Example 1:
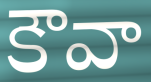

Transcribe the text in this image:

కౌవా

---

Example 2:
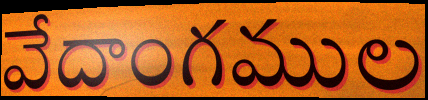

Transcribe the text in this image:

వేదాంగముల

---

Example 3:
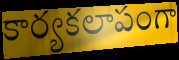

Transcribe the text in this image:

కార్యకలాపంగా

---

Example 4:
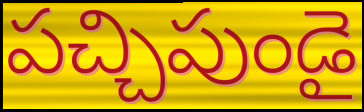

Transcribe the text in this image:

పచ్చిపుండై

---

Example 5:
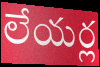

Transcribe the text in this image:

లేయర్ల